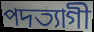
পদত্যাগী